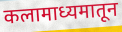
कलामाध्यमातून